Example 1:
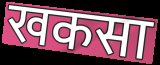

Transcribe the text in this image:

खकसा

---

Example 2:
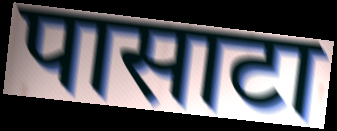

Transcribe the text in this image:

पासाटा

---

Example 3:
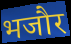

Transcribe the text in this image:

भजौर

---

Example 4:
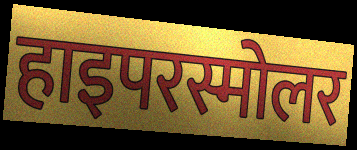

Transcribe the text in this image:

हाइपरस्मोलर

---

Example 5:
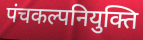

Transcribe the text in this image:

पंचकल्पनियुक्ति